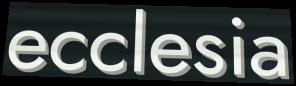
ecclesia